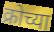
क्रोच्या